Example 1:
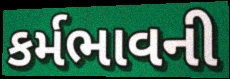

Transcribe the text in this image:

કર્મભાવની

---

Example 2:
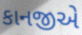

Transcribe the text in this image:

કાનજીએ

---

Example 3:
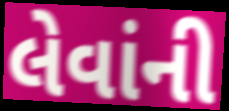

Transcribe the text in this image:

લેવાંની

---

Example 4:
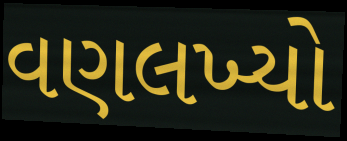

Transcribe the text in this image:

વણલખ્યો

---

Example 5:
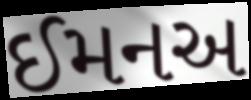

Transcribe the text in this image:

ઈમનઅ